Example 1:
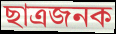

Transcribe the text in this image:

ছাত্ৰজনক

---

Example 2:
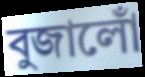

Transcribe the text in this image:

বুজালোঁ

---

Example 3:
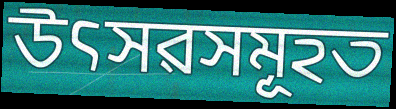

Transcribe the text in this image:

উৎসৱসমূহত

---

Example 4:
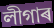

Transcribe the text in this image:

লীগাৰ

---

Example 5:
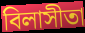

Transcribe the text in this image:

বিলাসীতা